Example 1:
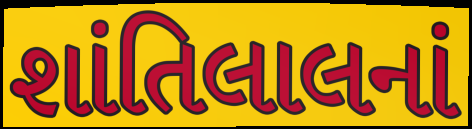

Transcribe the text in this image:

શાંતિલાલનાં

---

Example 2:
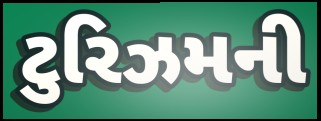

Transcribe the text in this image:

ટુરિઝમની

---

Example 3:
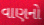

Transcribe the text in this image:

વાણનો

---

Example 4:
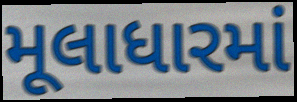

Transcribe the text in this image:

મૂલાધારમાં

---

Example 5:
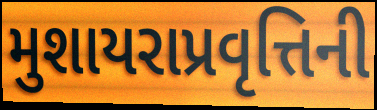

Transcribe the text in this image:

મુશાયરાપ્રવૃત્તિની